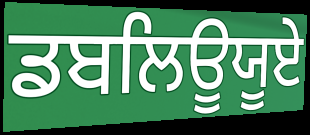
ਡਬਲਿਊਯੂਏ